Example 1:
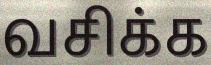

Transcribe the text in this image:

வசிக்க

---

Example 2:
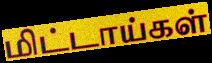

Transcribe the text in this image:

மிட்டாய்கள்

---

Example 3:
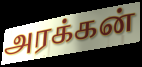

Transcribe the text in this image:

அரக்கன்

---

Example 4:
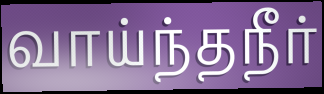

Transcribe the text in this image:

வாய்ந்தநீர்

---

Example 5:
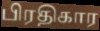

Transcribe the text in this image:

பிரதிகார